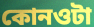
কোনওটা